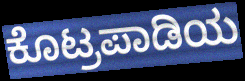
ಕೊಟ್ರಪಾಡಿಯ